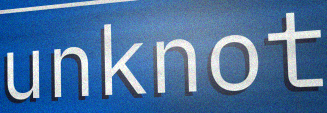
unknot